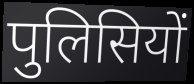
पुलिसियों